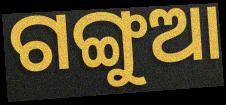
ଗଙ୍ଗୁଆ